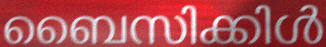
ബൈസിക്കിൾ